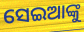
ସେଇଆଙ୍କୁ